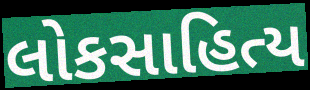
લોકસાહિત્ય